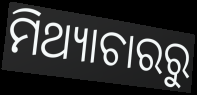
ମିଥ୍ୟାଚାରରୁ